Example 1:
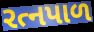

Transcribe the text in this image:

રત્નપાળ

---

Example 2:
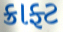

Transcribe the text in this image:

ક્રાફ્ટ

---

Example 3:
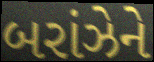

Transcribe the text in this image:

બરાંઝેને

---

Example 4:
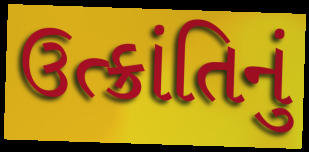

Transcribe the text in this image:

ઉત્ક્રાંતિનું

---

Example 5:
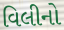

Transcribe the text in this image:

વિલીનો